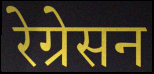
रेग्रेसन